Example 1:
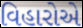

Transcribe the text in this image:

વિહારોએ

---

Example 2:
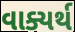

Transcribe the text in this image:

વાક્યર્થ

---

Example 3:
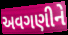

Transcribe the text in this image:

અવગણીને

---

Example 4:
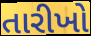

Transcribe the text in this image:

તારીખો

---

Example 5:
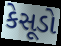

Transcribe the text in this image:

કેસૂડો